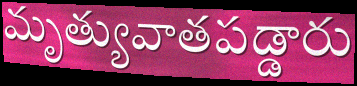
మృత్యువాతపడ్డారు